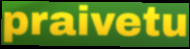
praivetu